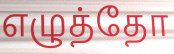
எழுத்தோ